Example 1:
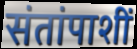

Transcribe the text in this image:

संतांपाशीं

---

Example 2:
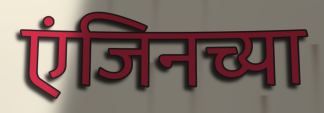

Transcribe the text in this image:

एंजिनच्या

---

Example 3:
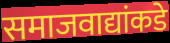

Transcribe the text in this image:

समाजवाद्यांकडे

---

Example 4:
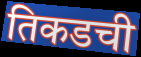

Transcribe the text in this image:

तिकडची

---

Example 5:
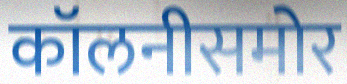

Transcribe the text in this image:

कॉलनीसमोर